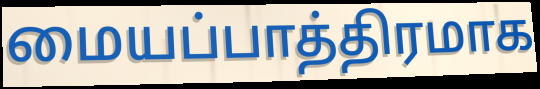
மையப்பாத்திரமாக